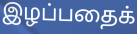
இழப்பதைக்